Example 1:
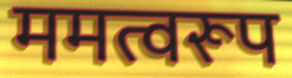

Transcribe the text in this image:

ममत्वरूप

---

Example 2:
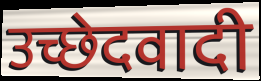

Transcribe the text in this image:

उच्छेदवादी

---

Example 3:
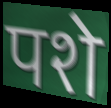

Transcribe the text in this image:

पशे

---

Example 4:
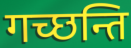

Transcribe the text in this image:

गच्छन्ति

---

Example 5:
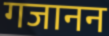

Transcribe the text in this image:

गजानन